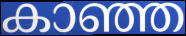
കാഞ്ഞ